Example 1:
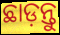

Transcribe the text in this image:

ଛାଡ଼ନ୍ତୁ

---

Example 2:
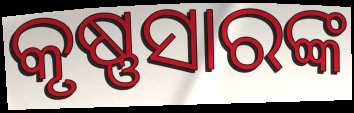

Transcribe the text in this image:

କୃଷ୍ଣସାରଙ୍କ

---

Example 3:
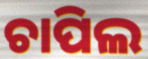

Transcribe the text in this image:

ଚାପିଲ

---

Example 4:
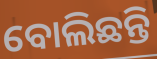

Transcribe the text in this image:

ବୋଲିଛନ୍ତି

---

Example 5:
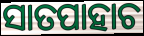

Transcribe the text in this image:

ସାତପାହାଚ